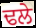
ਢਲੇ